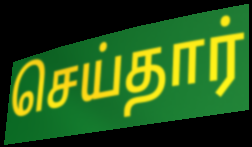
செய்தார்